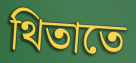
থিতাতে